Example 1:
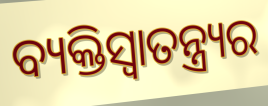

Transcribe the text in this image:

ବ୍ୟକ୍ତିସ୍ୱାତନ୍ତ୍ର୍ୟର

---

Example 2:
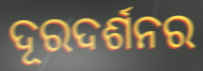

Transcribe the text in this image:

ଦୂରଦର୍ଶନର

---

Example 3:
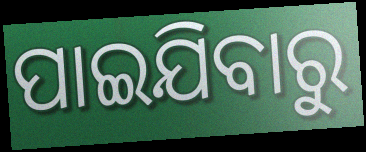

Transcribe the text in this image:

ପାଇଯିବାରୁ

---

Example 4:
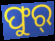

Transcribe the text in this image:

ଫୁର୍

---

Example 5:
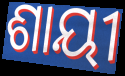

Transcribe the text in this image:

ଶାୟୀ